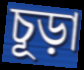
চূড়া